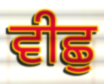
ਵੀਛੁ